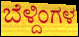
ಬೆಳ್ದಿಂಗಳ